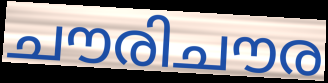
ചൗരിചൗര